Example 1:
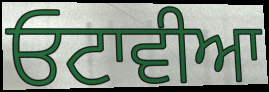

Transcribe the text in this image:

ਓਟਾਵੀਆ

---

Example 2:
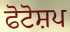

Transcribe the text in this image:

ਫੋਟੋਸ਼ਪ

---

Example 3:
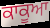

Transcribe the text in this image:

ਕਾਕੂਆ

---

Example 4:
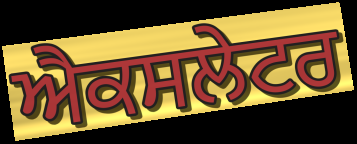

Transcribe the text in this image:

ਐਕਸਲੇਟਰ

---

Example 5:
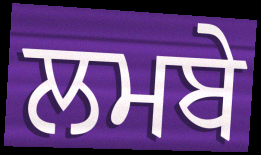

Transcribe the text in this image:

ਲਮਬੇ